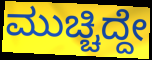
ಮುಚ್ಚಿದ್ದೇ